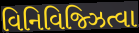
વિનિવિજ્ઝિત્વા